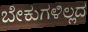
ಬೇಕುಗಳಿಲ್ಲದ